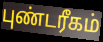
புண்டரீகம்